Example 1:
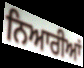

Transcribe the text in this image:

ਨਿਆਰੀਆਂ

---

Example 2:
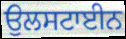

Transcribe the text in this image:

ਉਲਸਟਾਈਨ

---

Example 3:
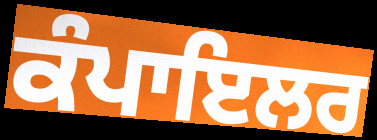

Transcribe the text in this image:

ਕੰਪਾਇਲਰ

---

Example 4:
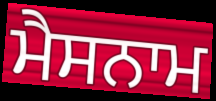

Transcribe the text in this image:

ਮੈਸਨਾਮ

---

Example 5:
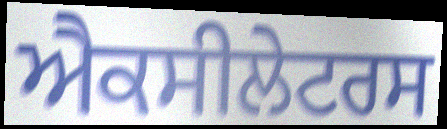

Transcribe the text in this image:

ਐਕਸੀਲੇਟਰਸ